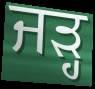
ਜੜ੍ਹ